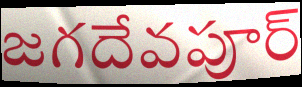
జగదేవపూర్